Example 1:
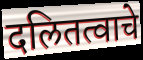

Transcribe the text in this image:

दलितत्वाचे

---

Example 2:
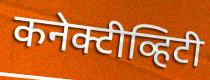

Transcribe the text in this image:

कनेक्टीव्हिटी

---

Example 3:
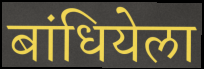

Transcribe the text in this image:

बांधियेला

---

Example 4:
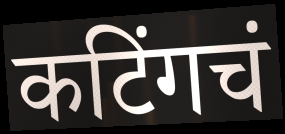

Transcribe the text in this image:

कटिंगचं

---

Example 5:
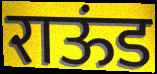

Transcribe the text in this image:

राऊंड